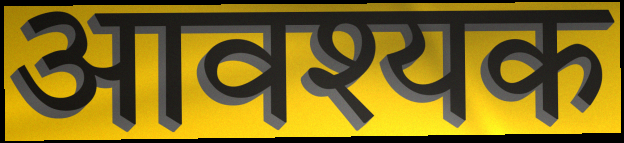
आवश्‍यक